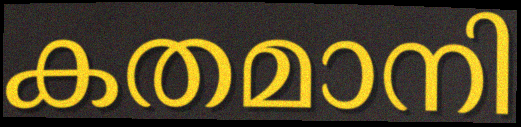
കതമാനി